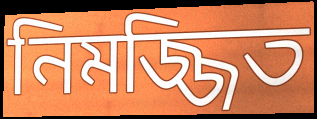
নিমজ্জিত